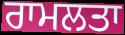
ਰਾਮਲਤਾ